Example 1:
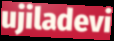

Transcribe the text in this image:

ujiladevi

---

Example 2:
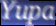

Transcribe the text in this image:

Yupa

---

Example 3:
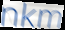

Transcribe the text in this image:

nkm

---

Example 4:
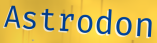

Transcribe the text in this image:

Astrodon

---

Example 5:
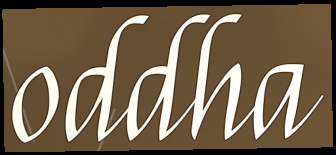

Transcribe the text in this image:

oddha